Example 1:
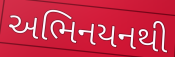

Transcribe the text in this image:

અભિનયનથી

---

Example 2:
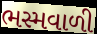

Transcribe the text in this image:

ભસ્મવાળી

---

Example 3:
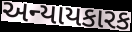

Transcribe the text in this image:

અન્યાયકારક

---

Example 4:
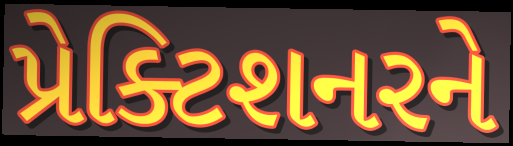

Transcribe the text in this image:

પ્રેક્ટિશનરને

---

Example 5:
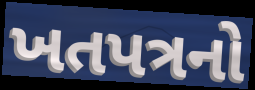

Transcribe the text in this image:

ખતપત્રનો